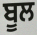
ਬੂਲ